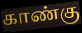
காண்கு